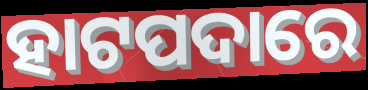
ହାଟପଦାରେ